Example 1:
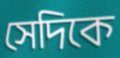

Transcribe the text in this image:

সেদিকে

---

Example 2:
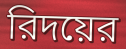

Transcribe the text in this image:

রিদয়ের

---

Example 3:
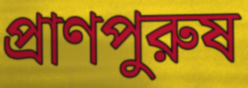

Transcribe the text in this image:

প্রাণপুরুষ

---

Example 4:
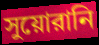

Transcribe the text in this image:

সুয়োরানি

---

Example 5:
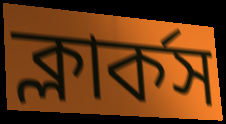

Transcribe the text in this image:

ক্লার্কস